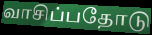
வாசிப்பதோடு